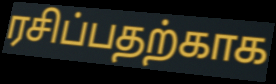
ரசிப்பதற்காக